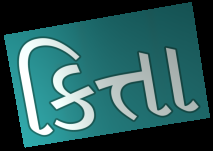
કિત્તા